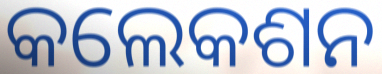
କଲେକଶନ